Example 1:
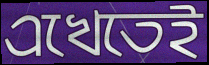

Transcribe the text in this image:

এখেতেই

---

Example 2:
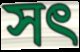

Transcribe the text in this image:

সৎ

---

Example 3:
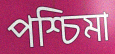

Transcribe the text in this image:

পশ্চিমা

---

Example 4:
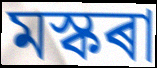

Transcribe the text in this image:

মস্কৰা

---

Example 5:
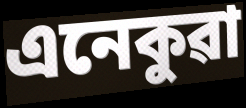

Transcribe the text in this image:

এনেকুৱা